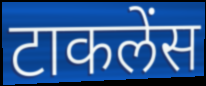
टाकलेंस